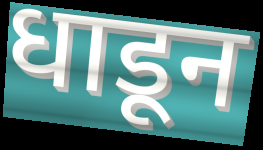
धाडून